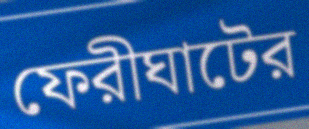
ফেরীঘাটের